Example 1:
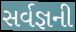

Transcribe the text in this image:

સર્વજ્ઞની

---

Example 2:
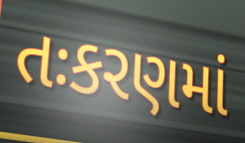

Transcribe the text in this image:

તઃકરણમાં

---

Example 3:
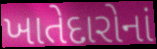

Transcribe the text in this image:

ખાતેદારોનાં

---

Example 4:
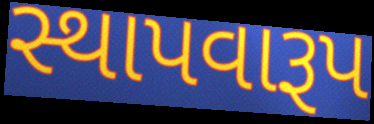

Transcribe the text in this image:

સ્થાપવારૂપ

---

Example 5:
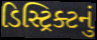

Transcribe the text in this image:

ડિસ્ટ્રિક્ટનું